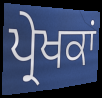
ਪ੍ਰੇਖਕਾਂ